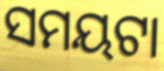
ସମୟଟା